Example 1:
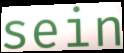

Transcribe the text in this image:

sein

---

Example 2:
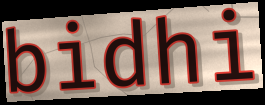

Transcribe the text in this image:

bidhi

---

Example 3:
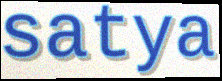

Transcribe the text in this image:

satya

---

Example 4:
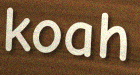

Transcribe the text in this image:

koah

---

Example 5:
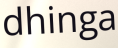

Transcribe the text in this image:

dhinga